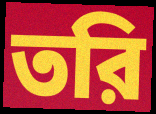
তরি